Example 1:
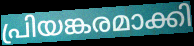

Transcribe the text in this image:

പ്രിയങ്കരമാക്കി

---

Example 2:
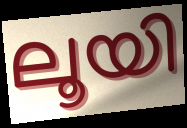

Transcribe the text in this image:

ലൂയി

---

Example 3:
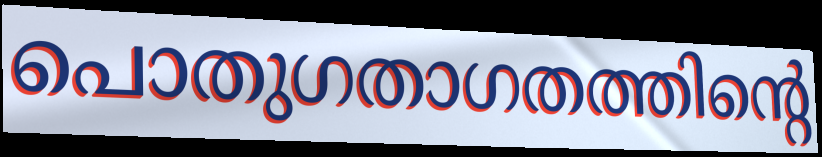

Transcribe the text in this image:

പൊതുഗതാഗതത്തിന്റെ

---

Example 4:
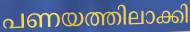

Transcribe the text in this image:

പണയത്തിലാക്കി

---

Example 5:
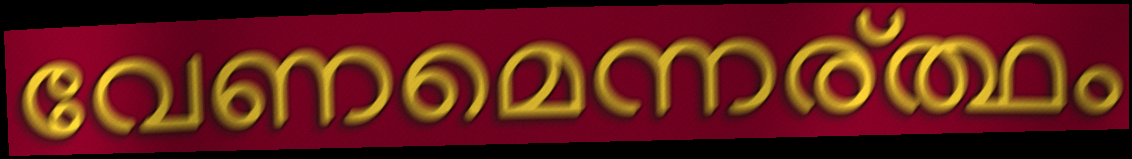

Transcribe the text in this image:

വേണമെന്നര്ത്ഥം